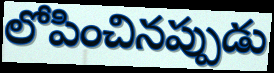
లోపించినప్పుడు